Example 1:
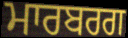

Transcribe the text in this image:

ਮਾਰਬਰਗ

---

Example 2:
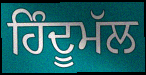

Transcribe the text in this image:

ਹਿੰਦੂਮੱਲ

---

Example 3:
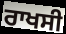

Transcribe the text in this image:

ਰਾਖਸੀ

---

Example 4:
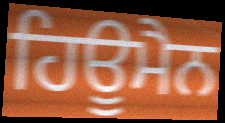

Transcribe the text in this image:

ਹਿਊਮੈਨ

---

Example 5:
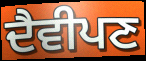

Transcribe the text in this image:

ਦੈਵੀਪਣ